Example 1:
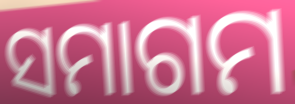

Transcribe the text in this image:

ସମାଗମ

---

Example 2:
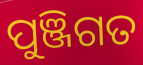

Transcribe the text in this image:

ପୁଞ୍ଜିଗତ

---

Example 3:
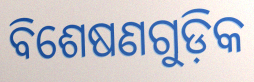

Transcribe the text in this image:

ବିଶେଷଣଗୁଡ଼ିକ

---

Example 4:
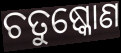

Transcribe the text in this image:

ଚତୁଷ୍କୋଣ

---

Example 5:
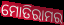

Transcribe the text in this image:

ମୋତିରାମର